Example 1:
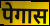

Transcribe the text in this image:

पेगास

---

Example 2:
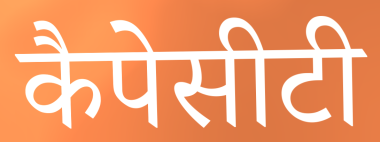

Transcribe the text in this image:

कैपेसीटी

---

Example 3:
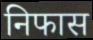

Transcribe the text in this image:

निफास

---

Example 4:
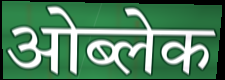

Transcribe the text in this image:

ओब्लेक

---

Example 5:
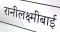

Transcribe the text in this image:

रानीलक्ष्मीबाई